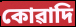
কোৱাদি